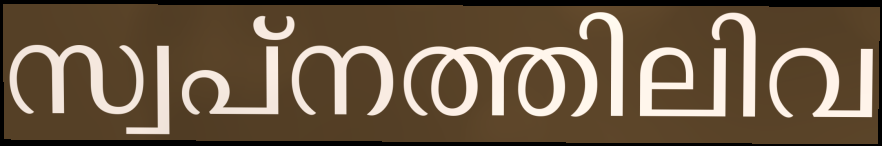
സ്വപ്നത്തിലിവ